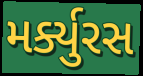
મર્ક્યુરસ